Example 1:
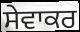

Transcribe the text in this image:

ਸੇਵਾਕਰ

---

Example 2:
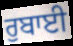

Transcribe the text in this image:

ਰੁਬਾਈ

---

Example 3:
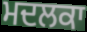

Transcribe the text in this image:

ਮਦਲਕਾ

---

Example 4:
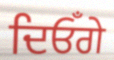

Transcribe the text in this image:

ਦਿਓਁਗੇ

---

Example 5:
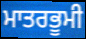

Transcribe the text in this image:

ਮਾਤਰਭੂਮੀ